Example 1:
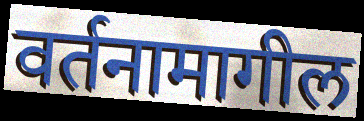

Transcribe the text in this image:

वर्तनामागील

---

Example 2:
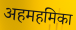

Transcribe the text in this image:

अहमहमिका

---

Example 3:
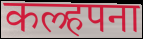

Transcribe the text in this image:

कल्हपना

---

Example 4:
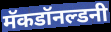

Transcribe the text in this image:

मॅकडॉनल्डनी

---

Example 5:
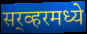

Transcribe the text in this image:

सर्व्हरमध्ये